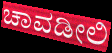
ಚಾವಡೀಲಿ